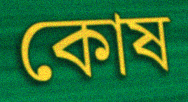
কোষ